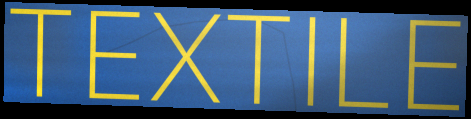
TEXTILE